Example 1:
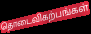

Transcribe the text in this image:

தொடைவிகற்பங்கள்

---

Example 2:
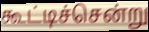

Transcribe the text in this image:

கூட்டிச்சென்று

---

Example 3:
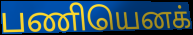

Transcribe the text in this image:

பணியெனக்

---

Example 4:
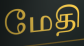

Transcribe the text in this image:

மேதி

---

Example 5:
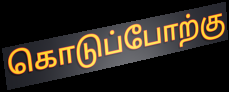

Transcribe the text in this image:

கொடுப்போற்கு